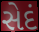
સેદં